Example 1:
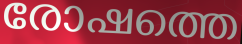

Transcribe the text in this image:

രോഷത്തെ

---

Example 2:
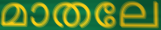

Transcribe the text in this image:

മാതലേ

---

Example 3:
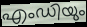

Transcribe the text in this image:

എംഡിയും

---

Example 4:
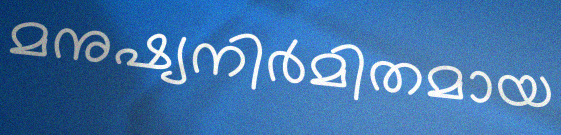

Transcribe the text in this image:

മനുഷ്യനിർമിതമായ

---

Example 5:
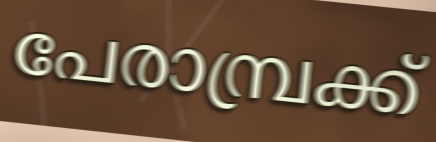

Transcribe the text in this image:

പേരാമ്പ്രക്ക്